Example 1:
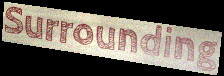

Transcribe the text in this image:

Surrounding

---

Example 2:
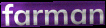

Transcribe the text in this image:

farman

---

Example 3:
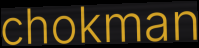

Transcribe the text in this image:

chokman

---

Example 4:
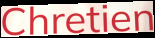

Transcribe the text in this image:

Chretien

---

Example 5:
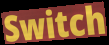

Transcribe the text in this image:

Switch